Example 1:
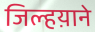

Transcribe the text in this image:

जिल्हय़ाने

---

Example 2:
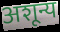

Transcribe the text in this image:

अशून्य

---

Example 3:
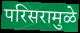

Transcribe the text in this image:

परिसरामुळे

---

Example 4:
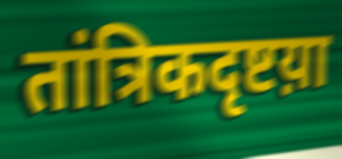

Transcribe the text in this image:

तांत्रिकदृष्टय़ा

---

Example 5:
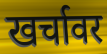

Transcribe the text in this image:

खर्चावर